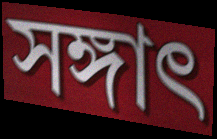
সঙ্গাৎ